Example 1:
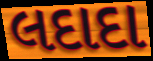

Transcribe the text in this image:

લદાદા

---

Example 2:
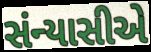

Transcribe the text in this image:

સંન્યાસીએ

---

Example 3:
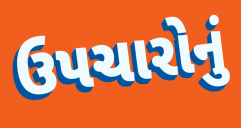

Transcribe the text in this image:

ઉપચારોનું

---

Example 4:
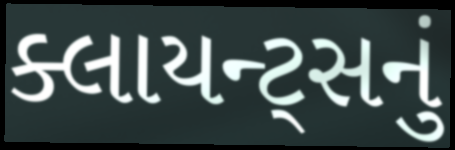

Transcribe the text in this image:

ક્લાયન્ટ્સનું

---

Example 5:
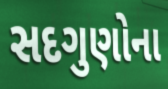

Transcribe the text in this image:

સદગુણોના